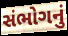
સંભોગનું